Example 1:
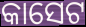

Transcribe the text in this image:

କାସେଟ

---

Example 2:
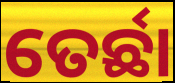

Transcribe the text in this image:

ତେର୍ଛା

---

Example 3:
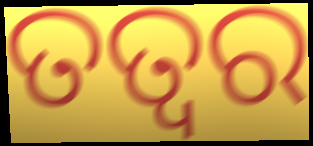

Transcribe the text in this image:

ତତ୍ଵର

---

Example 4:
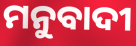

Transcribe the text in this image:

ମନୁବାଦୀ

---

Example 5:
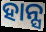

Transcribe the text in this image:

ହାନ୍ସ